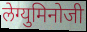
लेग्युमिनोजी